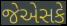
જેએસકે